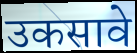
उकसावे